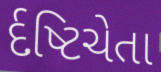
ર્દષ્ટિચેતા